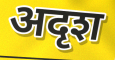
अदृश